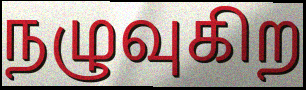
நழுவுகிற